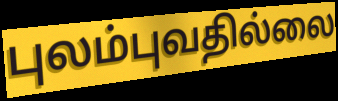
புலம்புவதில்லை